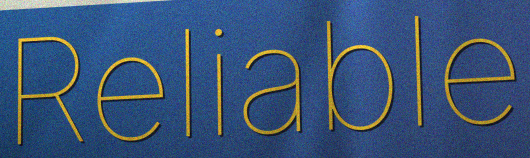
Reliable